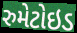
રુમેટોઇડ